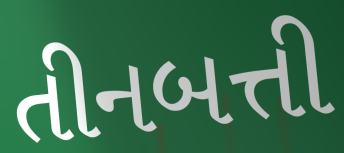
તીનબત્તી